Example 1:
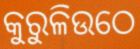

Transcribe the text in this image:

କୁରୁଳିଉଠେ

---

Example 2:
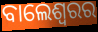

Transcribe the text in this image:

ବାଲେଶ୍ୱରର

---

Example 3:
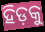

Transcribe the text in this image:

ହିଡ଼କୁ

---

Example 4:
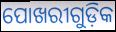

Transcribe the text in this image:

ପୋଖରୀଗୁଡ଼ିକ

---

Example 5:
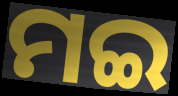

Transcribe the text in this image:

ମଇ